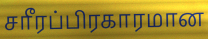
சரீரப்பிரகாரமான